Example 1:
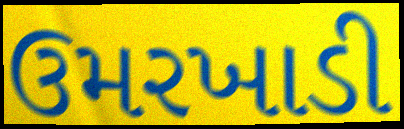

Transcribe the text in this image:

ઉમરખાડી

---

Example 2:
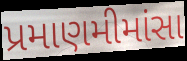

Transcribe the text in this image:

પ્રમાણમીમાંસા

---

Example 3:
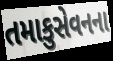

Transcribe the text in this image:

તમાકુસેવનના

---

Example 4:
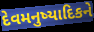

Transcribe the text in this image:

દેવમનુષ્યાદિકને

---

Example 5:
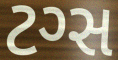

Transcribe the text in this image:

ટગ્સ